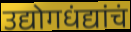
उद्योगधंद्यांचं